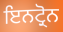
ਇਨਟ੍ਰੋਨ